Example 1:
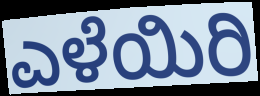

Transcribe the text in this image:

ಎಳೆಯಿರಿ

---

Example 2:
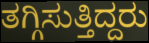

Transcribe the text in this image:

ತಗ್ಗಿಸುತ್ತಿದ್ದರು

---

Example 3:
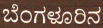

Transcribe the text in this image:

ಬೆಂಗಳೂರಿನ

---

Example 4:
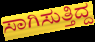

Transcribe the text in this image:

ಸಾಗಿಸುತ್ತಿದ್ದ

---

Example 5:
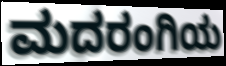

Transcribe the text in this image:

ಮದರಂಗಿಯ